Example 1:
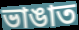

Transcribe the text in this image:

ভাঙাত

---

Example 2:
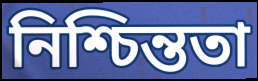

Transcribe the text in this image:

নিশ্চিন্ততা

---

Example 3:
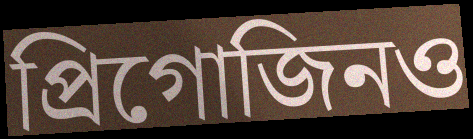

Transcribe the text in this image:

প্রিগোজিনও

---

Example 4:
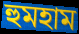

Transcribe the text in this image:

হুমহাম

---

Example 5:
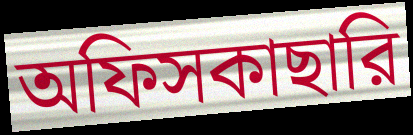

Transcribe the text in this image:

অফিসকাছারি